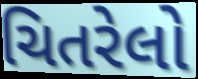
ચિતરેલો